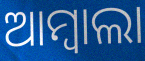
ଆମ୍ବାଲା